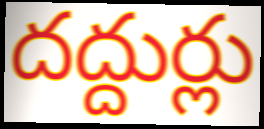
దద్దుర్లు